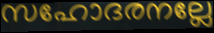
സഹോദരനല്ലേ